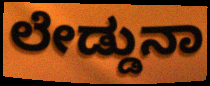
ಲೇಡ್ಡುನಾ